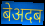
बेअदब